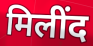
मिलींद